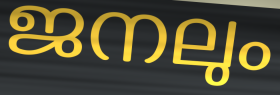
ജനലും